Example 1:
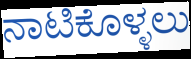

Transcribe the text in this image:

ನಾಟಿಕೊಳ್ಳಲು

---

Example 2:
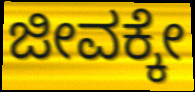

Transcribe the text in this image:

ಜೀವಕ್ಕೇ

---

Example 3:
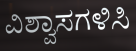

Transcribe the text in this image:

ವಿಶ್ವಾಸಗಳಿಸಿ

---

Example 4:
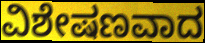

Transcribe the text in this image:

ವಿಶೇಷಣವಾದ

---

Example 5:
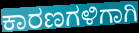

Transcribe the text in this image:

ಕಾರಣಗಳಿಗಾಗಿ